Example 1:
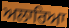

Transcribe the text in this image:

ਅਲਾਰਿਆ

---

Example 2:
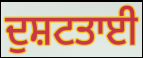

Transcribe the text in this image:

ਦੁਸ਼ਟਤਾਈ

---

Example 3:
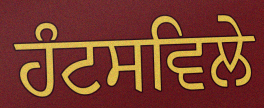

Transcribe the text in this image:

ਹੰਟਸਵਿਲੇ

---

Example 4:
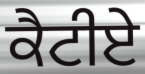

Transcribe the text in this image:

ਕੈਟੀਏ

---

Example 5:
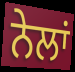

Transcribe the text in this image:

ਨੇਲਾਂ